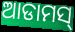
ଆଡାମସ୍